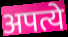
अपत्ये